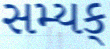
સમ્યક્